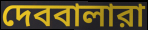
দেববালারা